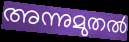
അന്നുമുതൽ